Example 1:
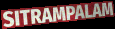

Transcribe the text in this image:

SITRAMPALAM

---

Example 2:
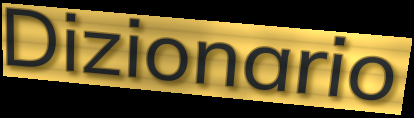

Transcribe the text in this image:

Dizionario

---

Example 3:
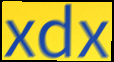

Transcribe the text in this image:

xdx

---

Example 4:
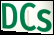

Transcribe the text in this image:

DCs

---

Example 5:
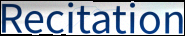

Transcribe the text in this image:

Recitation